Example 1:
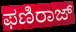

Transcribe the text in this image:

ಫಣಿರಾಜ್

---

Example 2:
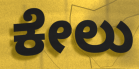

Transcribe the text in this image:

ಕೇಲು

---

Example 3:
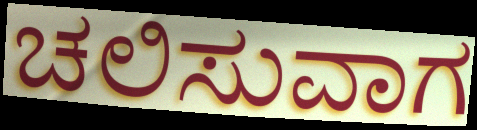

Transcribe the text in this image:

ಚಲಿಸುವಾಗ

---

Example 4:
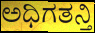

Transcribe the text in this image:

ಅಧಿಗತನ್ತಿ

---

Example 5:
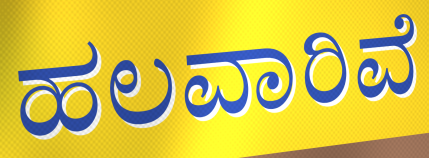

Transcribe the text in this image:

ಹಲವಾರಿವೆ